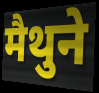
मैथुने